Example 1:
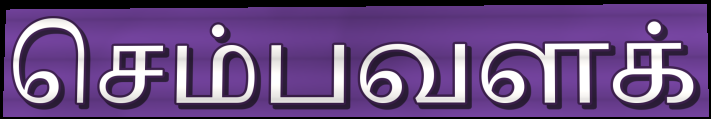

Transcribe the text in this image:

செம்பவளக்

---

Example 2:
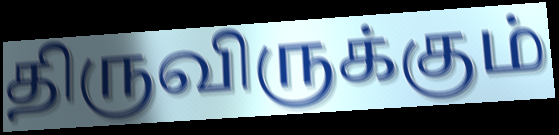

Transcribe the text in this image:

திருவிருக்கும்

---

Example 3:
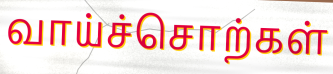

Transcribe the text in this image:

வாய்ச்சொற்கள்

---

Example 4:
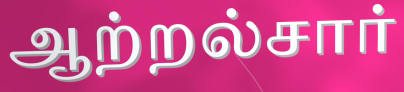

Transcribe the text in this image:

ஆற்றல்சார்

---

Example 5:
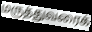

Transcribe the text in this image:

மருத்துவரைக்